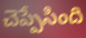
చెప్పేసింది